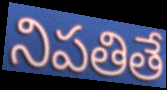
నిపతితే